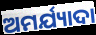
ଅମର୍ଯ୍ୟାଦା